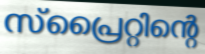
സ്പ്രൈറ്റിന്റെ